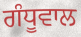
ਗੰਧੂਵਾਲ